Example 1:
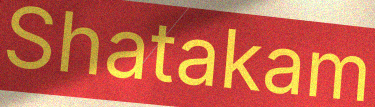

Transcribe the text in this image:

Shatakam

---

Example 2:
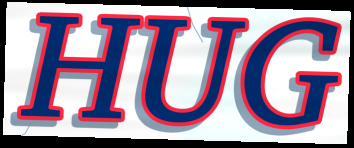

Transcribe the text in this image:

HUG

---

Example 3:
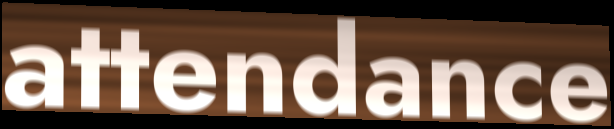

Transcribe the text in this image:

attendance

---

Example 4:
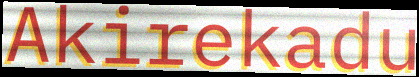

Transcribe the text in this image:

Akirekadu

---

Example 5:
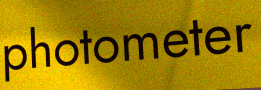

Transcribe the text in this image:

photometer